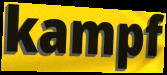
kampf